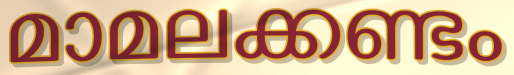
മാമലക്കണ്ടം